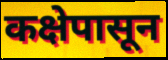
कक्षेपासून